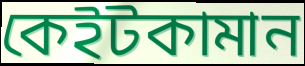
কেইটকামান